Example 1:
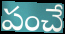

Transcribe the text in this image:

పంచే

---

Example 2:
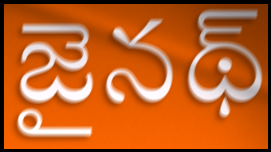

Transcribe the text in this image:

జైనథ్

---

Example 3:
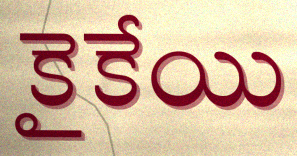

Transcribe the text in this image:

కైకేయి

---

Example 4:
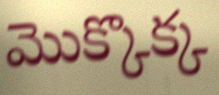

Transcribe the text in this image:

మొక్కొక్క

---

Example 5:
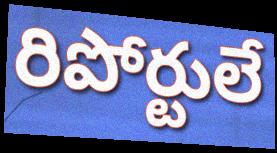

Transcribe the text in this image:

రిపోర్టులే